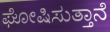
ಘೋಷಿಸುತ್ತಾನೆ